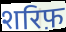
शरिफ़